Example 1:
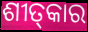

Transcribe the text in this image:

ଶୀତ୍‌କାର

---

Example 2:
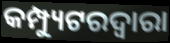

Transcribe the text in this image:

କମ୍ପ୍ୟୁଟରଦ୍ୱାରା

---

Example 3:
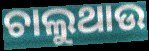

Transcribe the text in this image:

ଚାଲୁଥାଉ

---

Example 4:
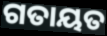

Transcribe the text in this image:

ଗତାୟତ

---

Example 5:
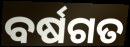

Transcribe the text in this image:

ବର୍ଷଗତ